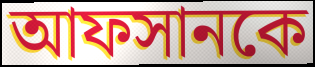
আফসানকে